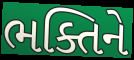
ભક્તિને